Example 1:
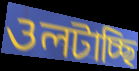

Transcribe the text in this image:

ওলটাচ্ছি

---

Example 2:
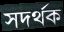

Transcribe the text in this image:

সদর্থক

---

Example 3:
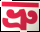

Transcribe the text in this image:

ভ্রু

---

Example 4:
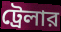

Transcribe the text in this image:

ট্রেলার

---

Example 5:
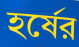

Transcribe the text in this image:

হর্ষের